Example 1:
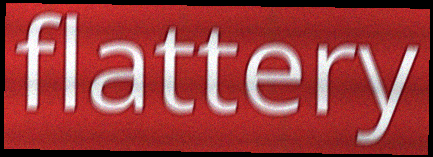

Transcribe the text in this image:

flattery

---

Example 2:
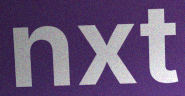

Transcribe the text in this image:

nxt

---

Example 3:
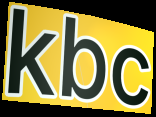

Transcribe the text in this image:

kbc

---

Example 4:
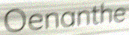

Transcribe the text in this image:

Oenanthe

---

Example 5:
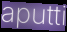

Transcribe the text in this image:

aputti